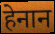
हेनान